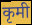
कृमी